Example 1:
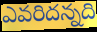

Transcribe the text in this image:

ఎవరిదన్నది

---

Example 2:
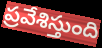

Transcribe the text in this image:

ప్రవేశిస్తుంది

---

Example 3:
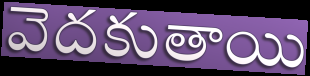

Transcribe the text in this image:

వెదకుతాయి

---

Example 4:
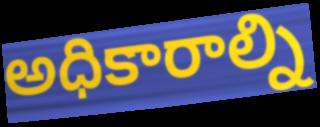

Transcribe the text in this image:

అధికారాల్ని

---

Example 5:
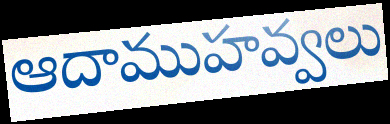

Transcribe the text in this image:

ఆదాముహవ్వలు